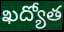
ఖద్యోత